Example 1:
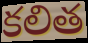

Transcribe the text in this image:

కలిత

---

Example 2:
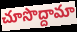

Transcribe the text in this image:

చూసొద్దామా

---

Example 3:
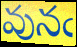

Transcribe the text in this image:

వునఁ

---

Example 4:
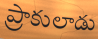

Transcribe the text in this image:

ప్రాకులాడు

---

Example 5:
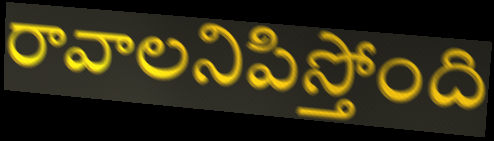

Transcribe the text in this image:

రావాలనిపిస్తోంది